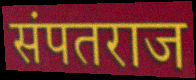
संपतराज